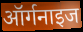
ऑर्गनाइज